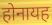
होनायह